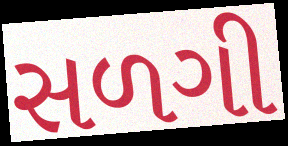
સળગી